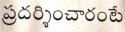
ప్రదర్శించారంటే